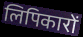
लिपिकारों